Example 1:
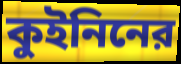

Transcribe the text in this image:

কুইনিনের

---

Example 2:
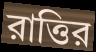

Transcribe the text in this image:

রাত্তির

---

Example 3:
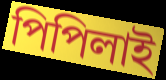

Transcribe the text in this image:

পিপিলাই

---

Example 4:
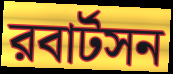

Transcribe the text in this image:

রবার্টসন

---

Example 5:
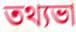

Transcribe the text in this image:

তথ্যভা